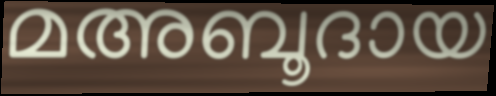
മഅബൂദായ